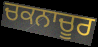
ਚਕਨਾਚੂਰ